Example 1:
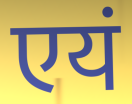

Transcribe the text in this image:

एयं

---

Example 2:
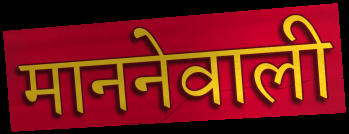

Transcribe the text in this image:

माननेवाली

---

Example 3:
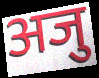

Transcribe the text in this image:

अजु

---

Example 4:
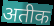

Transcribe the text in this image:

अतीक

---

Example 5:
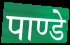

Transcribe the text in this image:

पाण्डे